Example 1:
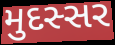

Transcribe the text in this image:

મુદસ્સર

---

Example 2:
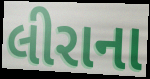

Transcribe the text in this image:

લીરાના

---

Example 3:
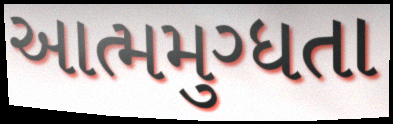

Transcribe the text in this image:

આત્મમુગ્ધતા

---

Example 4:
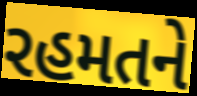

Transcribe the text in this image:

રહમતને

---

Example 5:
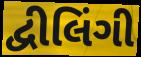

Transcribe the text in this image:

દ્વીલિંગી